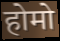
होमो